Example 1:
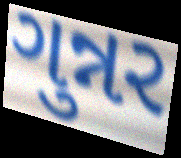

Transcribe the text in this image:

ગુન્નર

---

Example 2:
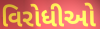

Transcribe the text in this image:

વિરોધીઓ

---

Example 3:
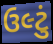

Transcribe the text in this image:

ઉલ્ટું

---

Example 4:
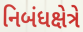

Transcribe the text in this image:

નિબંધક્ષેત્રે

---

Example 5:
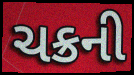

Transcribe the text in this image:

ચક્રની